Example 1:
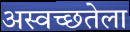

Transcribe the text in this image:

अस्वच्छतेला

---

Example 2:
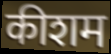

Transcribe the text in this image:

कीशम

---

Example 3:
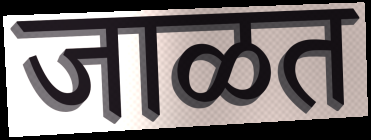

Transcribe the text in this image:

जाळत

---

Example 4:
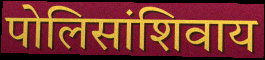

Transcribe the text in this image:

पोलिसांशिवाय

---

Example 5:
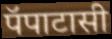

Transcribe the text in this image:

पॅपाटासी